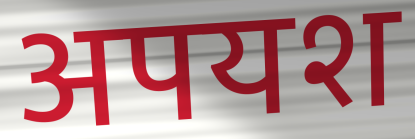
अपयश